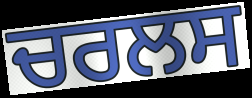
ਚਰਲਸ